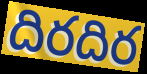
దిరదిర